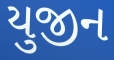
યુજીન